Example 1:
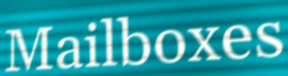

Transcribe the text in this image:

Mailboxes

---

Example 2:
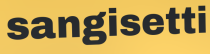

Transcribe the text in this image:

sangisetti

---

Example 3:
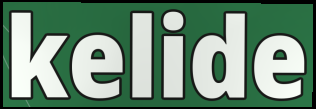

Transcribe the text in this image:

kelide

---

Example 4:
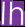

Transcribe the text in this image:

Ih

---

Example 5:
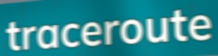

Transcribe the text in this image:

traceroute